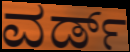
ವರ್ಡ್